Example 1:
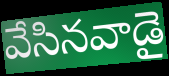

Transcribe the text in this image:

వేసినవాడై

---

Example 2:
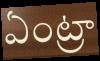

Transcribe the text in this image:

ఏంట్రా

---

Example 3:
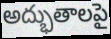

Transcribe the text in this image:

అద్భుతాలపై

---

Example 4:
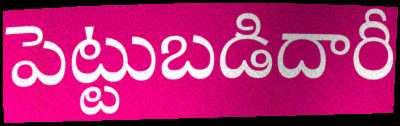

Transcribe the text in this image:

పెట్టుబడిదారీ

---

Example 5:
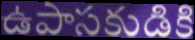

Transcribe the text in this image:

ఉపాసకుడికి